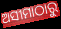
ଅସୀମାଠାରୁ